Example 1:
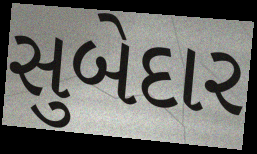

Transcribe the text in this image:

સુબેદાર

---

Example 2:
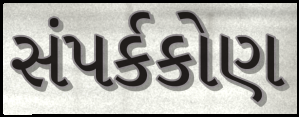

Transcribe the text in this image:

સંપર્કકોણ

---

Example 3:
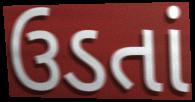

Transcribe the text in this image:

ઉડતાં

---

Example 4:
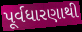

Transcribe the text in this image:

પૂર્વધારણાથી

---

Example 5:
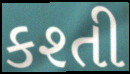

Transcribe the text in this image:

કશ્તી